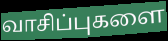
வாசிப்புகளை